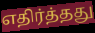
எதிர்த்தது